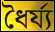
ধৈৰ্য্য